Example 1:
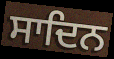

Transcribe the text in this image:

ਸਾਦਿਨ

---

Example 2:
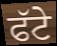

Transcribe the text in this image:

ਫੱਟੇ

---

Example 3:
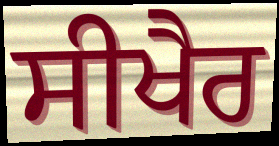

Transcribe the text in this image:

ਸੀਖੈਰ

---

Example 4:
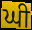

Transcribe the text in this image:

ਘੀ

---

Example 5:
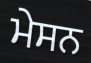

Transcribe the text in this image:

ਮੇਸਨ